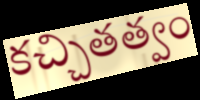
కచ్చితత్వం